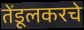
तेंडूलकरचे